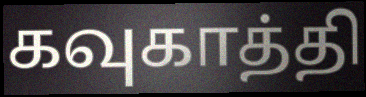
கவுகாத்தி